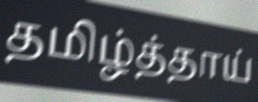
தமிழ்த்தாய்